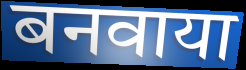
बनवाया